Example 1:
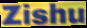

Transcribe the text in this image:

Zishu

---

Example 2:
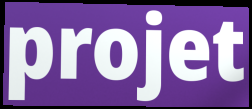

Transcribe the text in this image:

projet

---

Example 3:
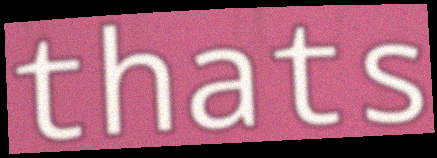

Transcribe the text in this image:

thats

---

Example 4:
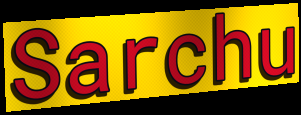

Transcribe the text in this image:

Sarchu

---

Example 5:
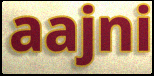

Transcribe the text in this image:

aajni